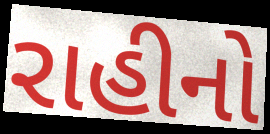
રાહીનો